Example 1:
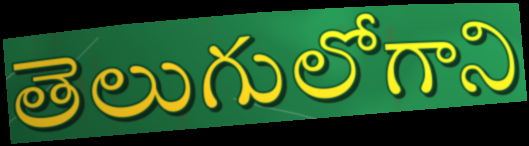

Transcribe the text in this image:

తెలుగులోగాని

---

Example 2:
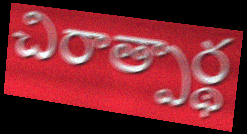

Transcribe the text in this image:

చిరాత్పార్థ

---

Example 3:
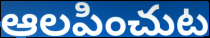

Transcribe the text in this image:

ఆలపించుట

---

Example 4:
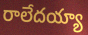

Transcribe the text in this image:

రాలేదయ్యా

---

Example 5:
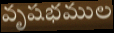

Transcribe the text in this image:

వృషభముల